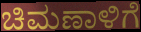
ಚಿಮಣಾಳಿಗೆ